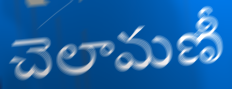
చెలామణీ